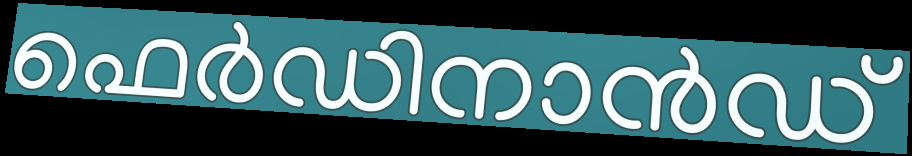
ഫെർഡിനാൻഡ്